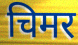
चिमर